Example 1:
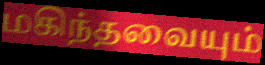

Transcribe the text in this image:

மகிந்தவையும்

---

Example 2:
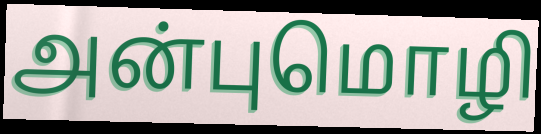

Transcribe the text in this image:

அன்புமொழி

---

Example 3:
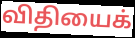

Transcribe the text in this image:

விதியைக்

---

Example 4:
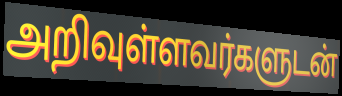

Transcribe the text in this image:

அறிவுள்ளவர்களுடன்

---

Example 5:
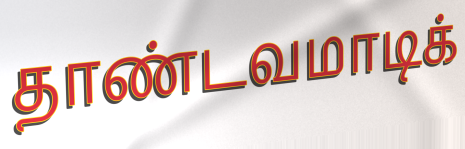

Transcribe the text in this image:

தாண்டவமாடிக்